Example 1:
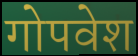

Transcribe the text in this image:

गोपवेश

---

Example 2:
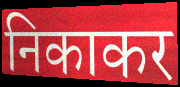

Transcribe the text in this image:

निकाकर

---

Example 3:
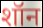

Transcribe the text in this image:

शॉन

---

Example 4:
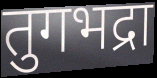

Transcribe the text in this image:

तुगभद्रा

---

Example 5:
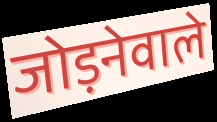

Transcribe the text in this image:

जोड़नेवाले